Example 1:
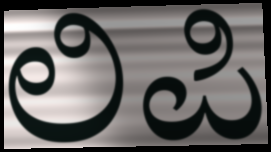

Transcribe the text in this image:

ಲಿಪಿ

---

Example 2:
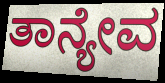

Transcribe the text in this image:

ತಾನ್ಯೇವ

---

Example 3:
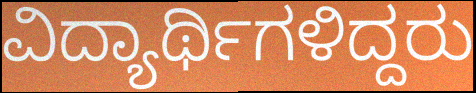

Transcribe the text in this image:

ವಿದ್ಯಾರ್ಥಿಗಳಿದ್ದರು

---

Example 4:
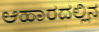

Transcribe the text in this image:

ಆಹಾರದಲ್ಲಿನ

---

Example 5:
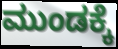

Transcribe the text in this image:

ಮುಂಡಕ್ಕೆ